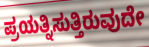
ಪ್ರಯತ್ನಿಸುತ್ತಿರುವುದೇ